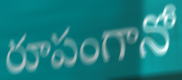
రూపంగానో